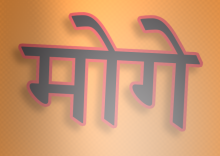
मोगे